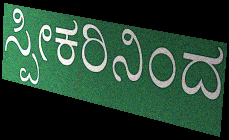
ಸ್ಪೀಕರಿನಿಂದ